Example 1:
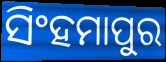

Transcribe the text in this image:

ସିଂହମାପୁର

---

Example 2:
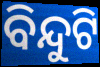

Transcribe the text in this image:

ବିନ୍ଦୁଟି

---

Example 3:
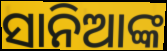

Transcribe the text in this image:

ସାନିଆଙ୍କ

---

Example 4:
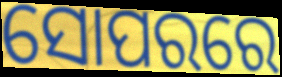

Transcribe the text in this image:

ସୋପରରେ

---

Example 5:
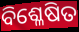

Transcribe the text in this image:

ବିଶ୍ଳେଷିତ